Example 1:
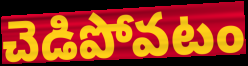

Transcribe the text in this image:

చెడిపోవటం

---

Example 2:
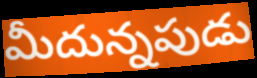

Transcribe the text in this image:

మీదున్నపుడు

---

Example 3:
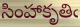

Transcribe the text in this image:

సింహాకృతిఁ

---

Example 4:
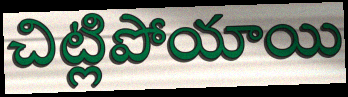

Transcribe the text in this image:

చిట్లిపోయాయి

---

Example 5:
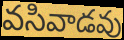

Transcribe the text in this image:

వసివాడవు